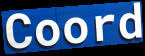
Coord